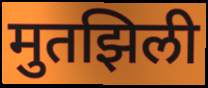
मुतझिली